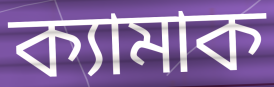
ক্যামাক